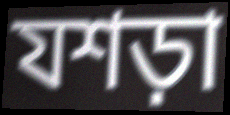
যশড়া